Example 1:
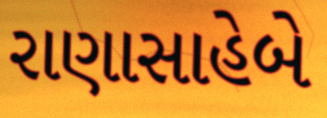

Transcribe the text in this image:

રાણાસાહેબે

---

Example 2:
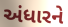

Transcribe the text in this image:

અંધારને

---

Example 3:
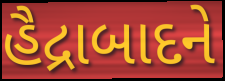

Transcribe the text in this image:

હૈદ્રાબાદને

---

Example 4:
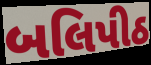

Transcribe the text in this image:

બલિપીઠ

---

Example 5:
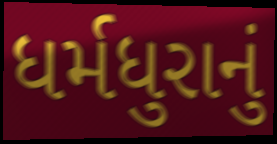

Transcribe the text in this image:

ધર્મધુરાનું